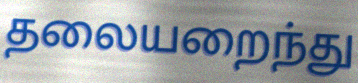
தலையறைந்து